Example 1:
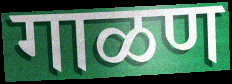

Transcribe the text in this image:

गाळण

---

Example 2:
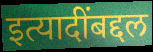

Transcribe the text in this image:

इत्यादींबद्दल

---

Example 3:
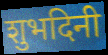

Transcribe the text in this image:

शुभदिनी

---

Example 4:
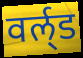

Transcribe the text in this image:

वर्ल्ड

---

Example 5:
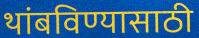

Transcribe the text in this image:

थांबविण्यासाठी